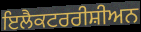
ਇਲੈਕਟਰਰੀਸ਼ੀਅਨ